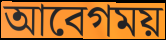
আবেগময়